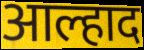
आल्हाद